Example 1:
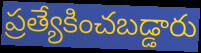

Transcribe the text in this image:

ప్రత్యేకించబడ్డారు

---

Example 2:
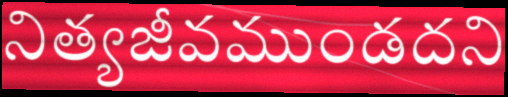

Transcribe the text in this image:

నిత్యజీవముండదని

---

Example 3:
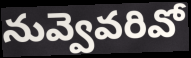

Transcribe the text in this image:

నువ్వెవరివో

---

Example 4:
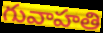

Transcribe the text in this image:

గువాహతి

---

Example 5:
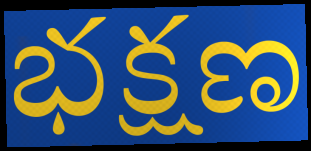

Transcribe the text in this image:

భక్షణ